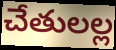
చేతులల్ల